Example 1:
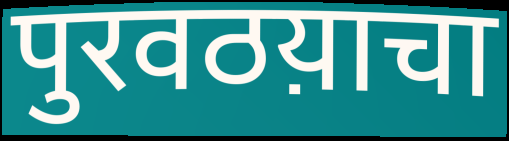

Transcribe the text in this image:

पुरवठय़ाचा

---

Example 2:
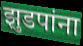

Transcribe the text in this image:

झुडपांना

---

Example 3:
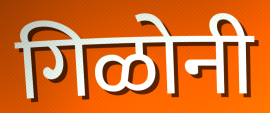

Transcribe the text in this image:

गिळोनी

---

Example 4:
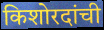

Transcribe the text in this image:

किशोरदांची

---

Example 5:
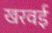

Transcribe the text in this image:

खरवई